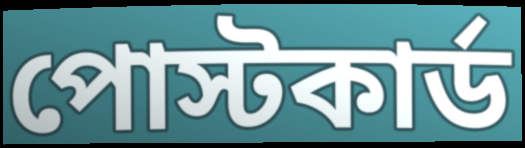
পোস্টকার্ড